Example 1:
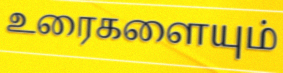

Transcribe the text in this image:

உரைகளையும்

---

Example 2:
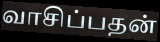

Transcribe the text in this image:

வாசிப்பதன்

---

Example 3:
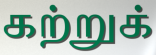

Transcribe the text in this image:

கற்றுக்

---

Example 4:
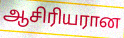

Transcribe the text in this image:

ஆசிரியரான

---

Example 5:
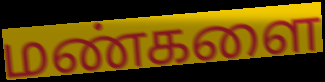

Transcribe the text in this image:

மண்களை